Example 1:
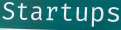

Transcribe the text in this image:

Startups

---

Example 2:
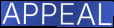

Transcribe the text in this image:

APPEAL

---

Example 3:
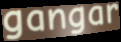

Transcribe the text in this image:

gangar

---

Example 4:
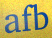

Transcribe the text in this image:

afb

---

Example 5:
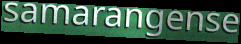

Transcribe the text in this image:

samarangense